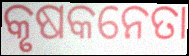
କୃଷକନେତା